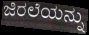
ಜಿರಲೆಯನ್ನು